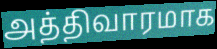
அத்திவாரமாக